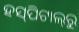
ହସ୍‌ପିଟାଲ୍‌ରୁ